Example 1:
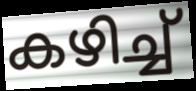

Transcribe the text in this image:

കഴിച്ച്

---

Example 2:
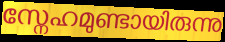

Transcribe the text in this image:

സ്നേഹമുണ്ടായിരുന്നു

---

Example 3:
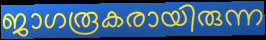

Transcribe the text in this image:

ജാഗരൂകരായിരുന്ന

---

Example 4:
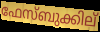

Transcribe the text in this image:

ഫേസ്ബുക്കില്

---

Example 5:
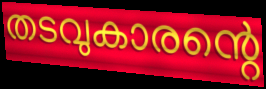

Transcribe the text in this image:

തടവുകാരന്റെ